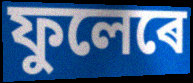
ফুলেৰে